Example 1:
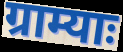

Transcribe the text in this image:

ग्राम्याः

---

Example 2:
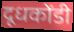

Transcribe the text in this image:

दूधकोंडी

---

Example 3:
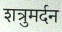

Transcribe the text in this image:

शत्रुमर्दन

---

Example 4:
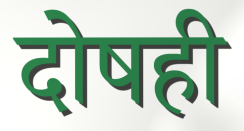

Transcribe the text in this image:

दोषही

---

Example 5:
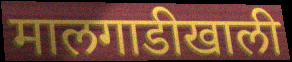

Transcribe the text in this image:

मालगाडीखाली